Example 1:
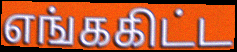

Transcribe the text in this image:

எங்ககிட்ட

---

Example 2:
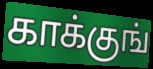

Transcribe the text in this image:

காக்குங்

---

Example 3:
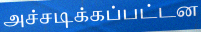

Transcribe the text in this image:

அச்சடிக்கப்பட்டன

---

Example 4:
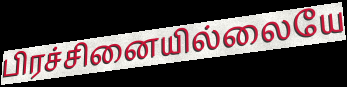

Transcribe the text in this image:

பிரச்சினையில்லையே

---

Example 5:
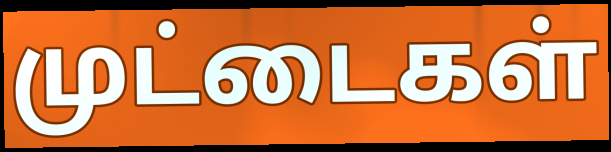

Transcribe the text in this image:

முட்டைகள்